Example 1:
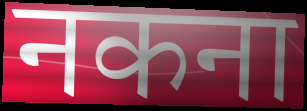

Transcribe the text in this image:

नकना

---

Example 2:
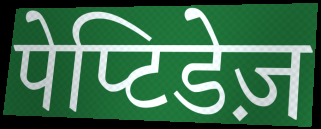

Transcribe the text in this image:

पेप्टिडेज़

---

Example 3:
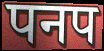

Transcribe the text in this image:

पनप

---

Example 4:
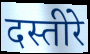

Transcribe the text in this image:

दस्तीरे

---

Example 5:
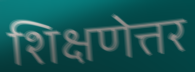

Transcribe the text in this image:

शिक्षणेत्तर